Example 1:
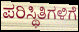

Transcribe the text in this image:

ಪರಿಸ್ಥಿತಿಗಳಿಗೆ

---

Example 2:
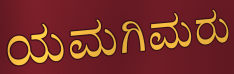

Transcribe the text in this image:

ಯಮಗಿಮರು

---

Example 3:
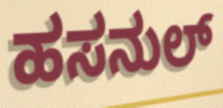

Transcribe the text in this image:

ಹಸನುಲ್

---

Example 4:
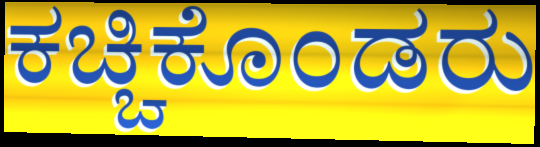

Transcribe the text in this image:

ಕಚ್ಚಿಕೊಂಡರು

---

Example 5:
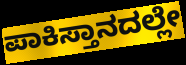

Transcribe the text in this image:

ಪಾಕಿಸ್ತಾನದಲ್ಲೇ